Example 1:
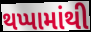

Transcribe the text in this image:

થપ્પામાંથી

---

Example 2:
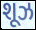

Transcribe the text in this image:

શૂઝ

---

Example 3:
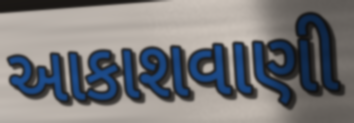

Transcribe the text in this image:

આકાશવાણી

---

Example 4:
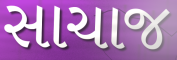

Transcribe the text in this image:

સાચાજ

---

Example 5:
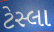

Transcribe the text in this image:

ટેસ્લા